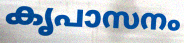
കൃപാസനം